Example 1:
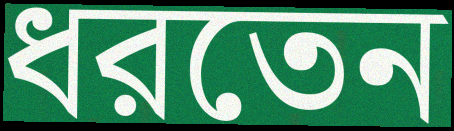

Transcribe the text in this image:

ধরতেন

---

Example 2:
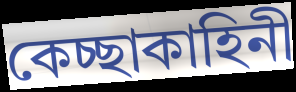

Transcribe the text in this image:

কেচ্ছাকাহিনী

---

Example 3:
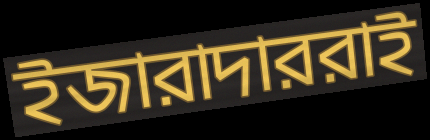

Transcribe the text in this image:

ইজারাদাররাই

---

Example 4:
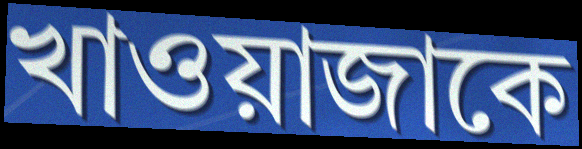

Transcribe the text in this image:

খাওয়াজাকে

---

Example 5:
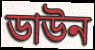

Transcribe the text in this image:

ডাউন